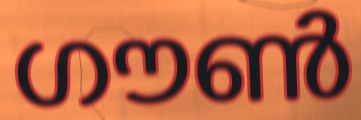
ഗൗൺ